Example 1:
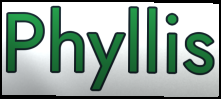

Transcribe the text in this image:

Phyllis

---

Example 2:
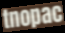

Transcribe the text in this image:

tnopac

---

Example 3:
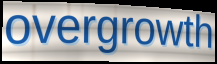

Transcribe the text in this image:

overgrowth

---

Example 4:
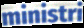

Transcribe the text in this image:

ministri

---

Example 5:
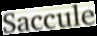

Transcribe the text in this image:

Saccule